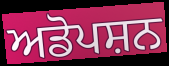
ਅਡੋਪਸ਼ਨ